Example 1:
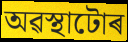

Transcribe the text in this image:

অৱস্থাটোৰ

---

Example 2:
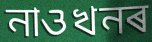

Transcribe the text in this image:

নাওখনৰ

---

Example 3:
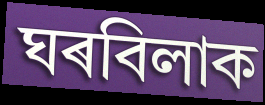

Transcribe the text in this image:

ঘৰবিলাক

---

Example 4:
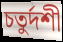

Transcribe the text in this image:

চতুৰ্দশী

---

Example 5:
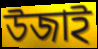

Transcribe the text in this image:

উজাই